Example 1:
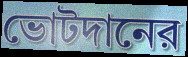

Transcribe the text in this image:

ভোটদানের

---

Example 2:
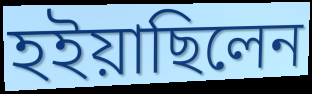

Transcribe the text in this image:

হইয়াছিলেন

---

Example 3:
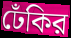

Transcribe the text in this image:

ঢেঁকির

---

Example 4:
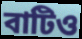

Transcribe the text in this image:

বাটিও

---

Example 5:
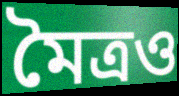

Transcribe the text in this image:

মৈত্রও